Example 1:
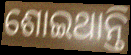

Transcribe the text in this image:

ଶୋଇଥାନ୍ତି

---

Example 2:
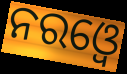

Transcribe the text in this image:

ନରଓ୍ୱେ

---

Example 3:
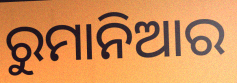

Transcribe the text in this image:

ରୁମାନିଆର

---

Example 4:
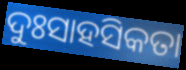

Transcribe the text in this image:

ଦୁଃସାହସିକତା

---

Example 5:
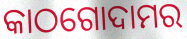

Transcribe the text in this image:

କାଠଗୋଦାମର